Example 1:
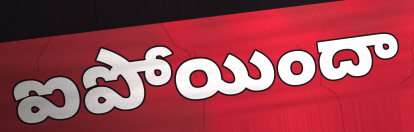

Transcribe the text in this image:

ఐపోయిందా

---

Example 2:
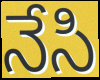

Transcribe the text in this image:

నేసి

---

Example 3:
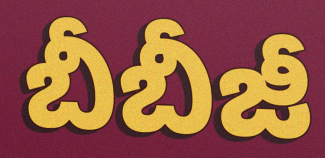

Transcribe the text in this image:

బీబీజీ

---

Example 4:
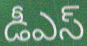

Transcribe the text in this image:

డీఎస్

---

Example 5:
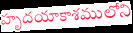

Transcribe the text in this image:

హృదయాకాశములోని